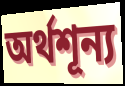
অর্থশূন্য